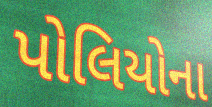
પોલિયોના